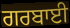
ਗਰਬਾਈ